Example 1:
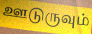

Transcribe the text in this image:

ஊடுருவும்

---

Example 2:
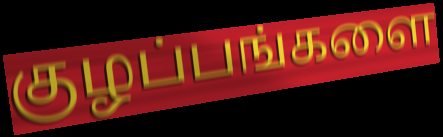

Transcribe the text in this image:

குழப்பங்களை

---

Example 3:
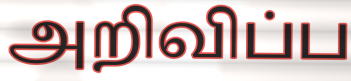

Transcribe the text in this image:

அறிவிப்ப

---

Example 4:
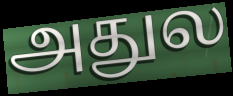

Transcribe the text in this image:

அதுல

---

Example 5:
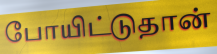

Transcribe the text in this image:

போயிட்டுதான்